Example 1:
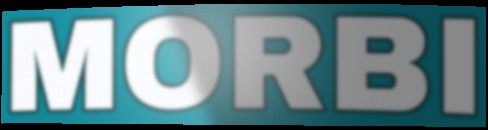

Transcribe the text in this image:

MORBI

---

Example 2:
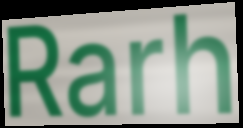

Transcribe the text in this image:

Rarh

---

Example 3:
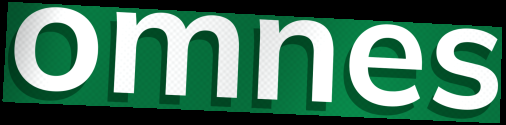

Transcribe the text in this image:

omnes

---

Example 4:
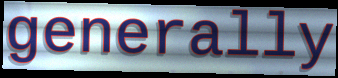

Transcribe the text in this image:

generally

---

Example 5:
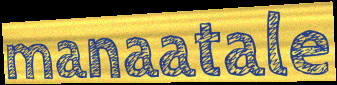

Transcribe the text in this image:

manaatale